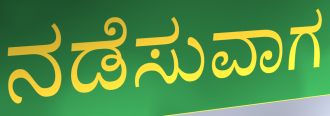
ನಡೆಸುವಾಗ